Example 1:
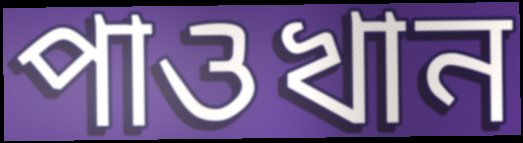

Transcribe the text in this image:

পাওখান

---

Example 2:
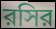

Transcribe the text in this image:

রসির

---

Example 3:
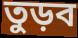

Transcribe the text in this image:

তুড়ব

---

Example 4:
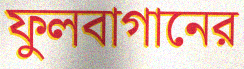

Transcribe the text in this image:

ফুলবাগানের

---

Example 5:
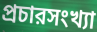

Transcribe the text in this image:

প্রচারসংখ্যা